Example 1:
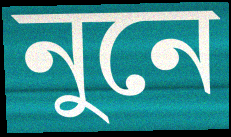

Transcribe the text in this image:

নুনে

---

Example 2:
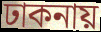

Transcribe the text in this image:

ঢাকনায়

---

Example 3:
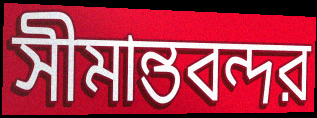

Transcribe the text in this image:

সীমান্তবন্দর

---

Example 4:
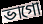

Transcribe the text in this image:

ভাগো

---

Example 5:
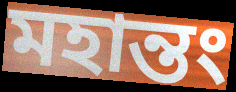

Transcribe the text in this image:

মহান্তং